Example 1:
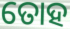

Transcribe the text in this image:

ତୋହ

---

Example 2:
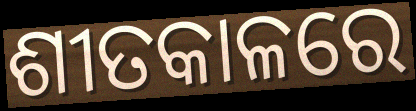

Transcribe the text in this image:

ଶୀତକାଳରେ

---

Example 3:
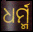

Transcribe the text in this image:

ଧର୍ମ୍ମ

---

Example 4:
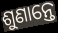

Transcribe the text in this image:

ଶୁଣାନ୍ତେ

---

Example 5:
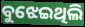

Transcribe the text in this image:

ବୁଝେଇଥିଲି